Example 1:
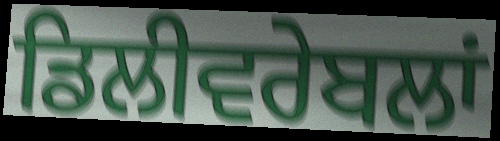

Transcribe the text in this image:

ਡਿਲੀਵਰੇਬਲਾਂ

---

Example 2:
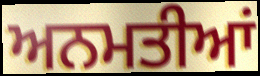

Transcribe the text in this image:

ਅਨਮਤੀਆਂ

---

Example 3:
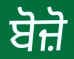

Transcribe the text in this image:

ਬੋਜ਼ੋ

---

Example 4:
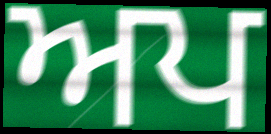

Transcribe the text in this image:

ਅਪ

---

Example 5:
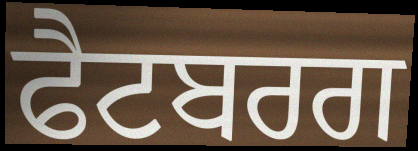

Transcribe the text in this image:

ਫੈਟਬਰਗ